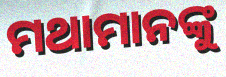
ମଥାମାନଙ୍କୁ